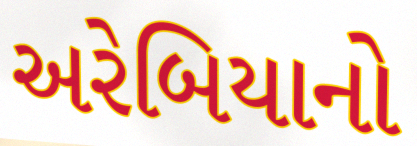
અરેબિયાનો